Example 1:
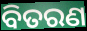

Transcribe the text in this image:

ବିତରଣ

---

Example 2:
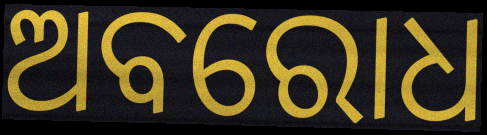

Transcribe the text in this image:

ଅବରୋଧ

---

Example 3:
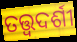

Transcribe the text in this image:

ତତ୍ତ୍ଵଦର୍ଶୀ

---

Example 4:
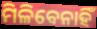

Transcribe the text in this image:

ମିଳିବେନାହିଁ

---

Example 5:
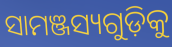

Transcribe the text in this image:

ସାମଞ୍ଜସ୍ୟଗୁଡ଼ିକୁ